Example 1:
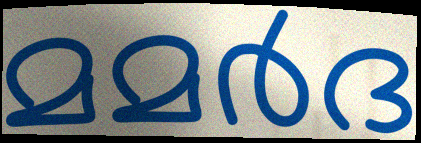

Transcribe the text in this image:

മമർദ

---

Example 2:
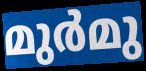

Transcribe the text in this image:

മുർമു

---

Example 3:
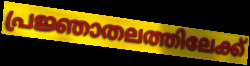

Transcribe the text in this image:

പ്രജ്ഞാതലത്തിലേക്ക്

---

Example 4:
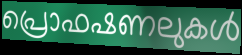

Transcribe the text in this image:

പ്രൊഫഷണലുകൾ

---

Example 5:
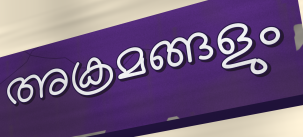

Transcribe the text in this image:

അക്രമങ്ങളും